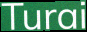
Turai